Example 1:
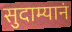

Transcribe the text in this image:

सुदाम्यानं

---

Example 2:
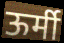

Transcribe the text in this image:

ऊर्मी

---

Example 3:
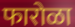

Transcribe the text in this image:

फारोळा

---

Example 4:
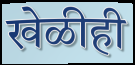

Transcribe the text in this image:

खेळीही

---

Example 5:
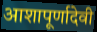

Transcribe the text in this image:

आशापूर्णादेवी